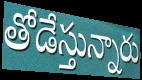
తోడేస్తున్నారు